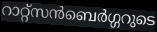
റാറ്റ്സൻബെർഗ്ഗറുടെ